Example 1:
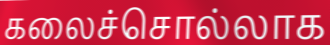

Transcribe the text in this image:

கலைச்சொல்லாக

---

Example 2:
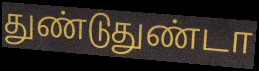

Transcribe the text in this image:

துண்டுதுண்டா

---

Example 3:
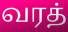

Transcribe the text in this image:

வரத்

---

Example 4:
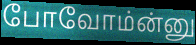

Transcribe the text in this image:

போவோம்ன்னு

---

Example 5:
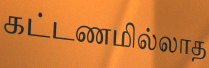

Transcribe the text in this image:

கட்டணமில்லாத